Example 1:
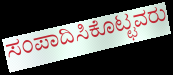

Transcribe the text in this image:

ಸಂಪಾದಿಸಿಕೊಟ್ಟವರು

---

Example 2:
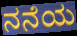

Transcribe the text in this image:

ನನೆಯ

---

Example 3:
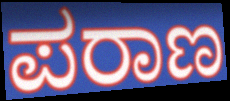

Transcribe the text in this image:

ಪರಾಣ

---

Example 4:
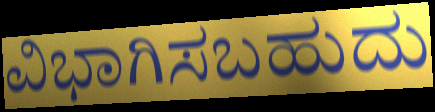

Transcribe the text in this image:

ವಿಭಾಗಿಸಬಹುದು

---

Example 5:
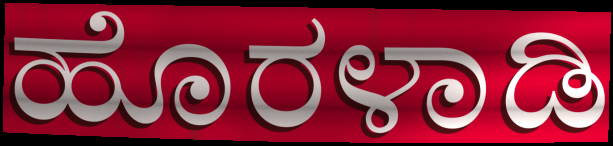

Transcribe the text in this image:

ಹೊರಳಾಡಿ